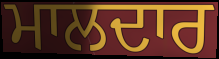
ਮਾਲਦਾਰ